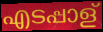
എടപ്പാള്